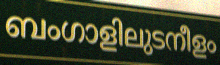
ബംഗാളിലുടനീളം